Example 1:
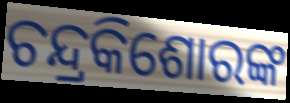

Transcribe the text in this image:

ଚନ୍ଦ୍ରକିଶୋରଙ୍କ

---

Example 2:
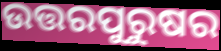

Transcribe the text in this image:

ଉତ୍ତରପୁରୁଷର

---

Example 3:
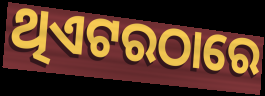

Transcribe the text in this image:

ଥିଏଟରଠାରେ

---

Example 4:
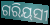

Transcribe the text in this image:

ଗରିୟସୀ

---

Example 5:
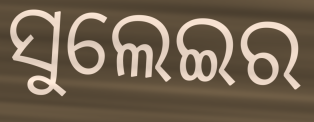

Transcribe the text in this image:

ସୁଲେଇର